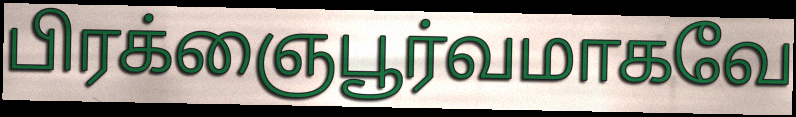
பிரக்ஞைபூர்வமாகவே